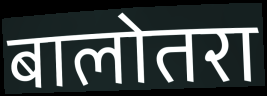
बालोतरा